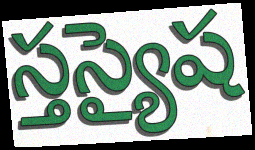
స్తస్యైష